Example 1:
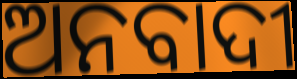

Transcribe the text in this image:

ଅନବାଦୀ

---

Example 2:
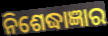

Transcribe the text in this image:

ନିଶେଦ୍ଧାଜ୍ଞାର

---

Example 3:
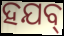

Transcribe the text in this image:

ହଯବ୍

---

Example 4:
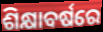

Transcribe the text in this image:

ଶିକ୍ଷାବର୍ଷରେ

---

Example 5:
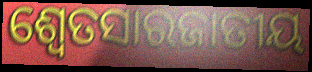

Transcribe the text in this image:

ଶ୍ଵେତସାରଜାତୀୟ